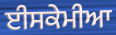
ਈਸਕੇਮੀਆ